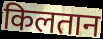
किलतान